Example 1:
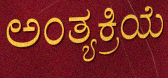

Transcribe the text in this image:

ಅಂತ್ಯಕ್ರಿಯೆ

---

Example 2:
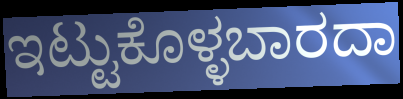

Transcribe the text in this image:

ಇಟ್ಟುಕೊಳ್ಳಬಾರದಾ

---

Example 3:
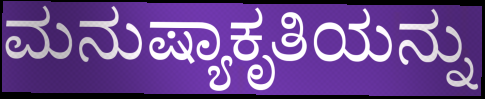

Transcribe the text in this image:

ಮನುಷ್ಯಾಕೃತಿಯನ್ನು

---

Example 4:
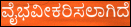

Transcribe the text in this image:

ವೈಭವೀಕರಿಸಲಾಗಿದೆ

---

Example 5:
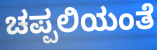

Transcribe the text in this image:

ಚಪ್ಪಲಿಯಂತೆ